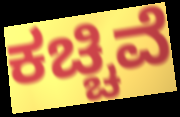
ಕಚ್ಚಿವೆ